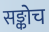
सङ्कोच